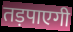
तड़पाएगी